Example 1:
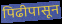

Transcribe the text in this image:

पिढीपासून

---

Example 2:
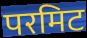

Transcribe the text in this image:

परमिट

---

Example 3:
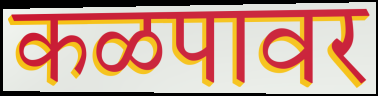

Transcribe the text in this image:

कळपावर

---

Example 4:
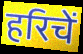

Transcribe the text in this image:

हरिचें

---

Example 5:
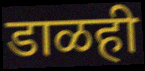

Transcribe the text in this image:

डाळही